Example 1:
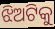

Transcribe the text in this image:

ଝିଅଟିକୁ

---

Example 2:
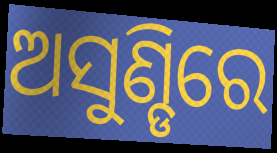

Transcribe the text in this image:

ଅସୁଣ୍ଡିରେ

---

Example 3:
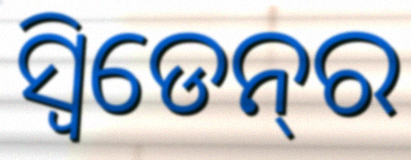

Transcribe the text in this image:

ସ୍ୱିଡେନ୍‌ର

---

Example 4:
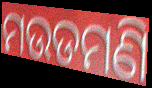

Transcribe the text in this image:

ମଉଡମଣି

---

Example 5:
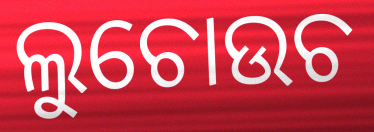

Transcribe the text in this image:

ଲୁଚୋଉଚ